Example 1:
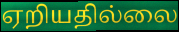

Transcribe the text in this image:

ஏறியதில்லை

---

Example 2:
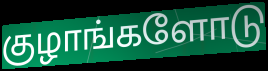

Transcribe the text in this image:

குழாங்களோடு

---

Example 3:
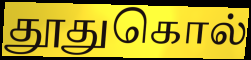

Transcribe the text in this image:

தூதுகொல்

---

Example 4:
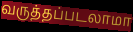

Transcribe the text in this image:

வருத்தப்படலாமா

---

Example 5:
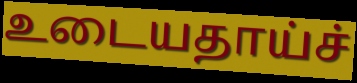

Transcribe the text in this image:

உடையதாய்ச்